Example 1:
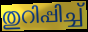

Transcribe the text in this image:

തുറിപ്പിച്ച്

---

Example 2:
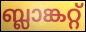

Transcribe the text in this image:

ബ്ലാങ്കറ്റ്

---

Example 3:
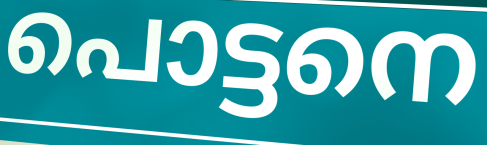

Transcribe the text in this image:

പൊട്ടനെ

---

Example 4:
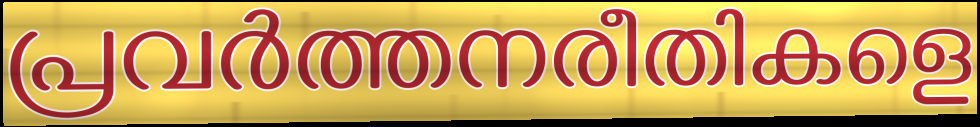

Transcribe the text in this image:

പ്രവർത്തനരീതികളെ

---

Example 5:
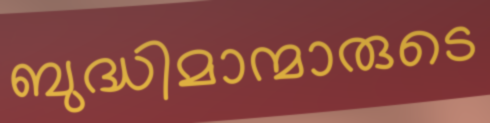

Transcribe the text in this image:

ബുദ്ധിമാന്മാരുടെ